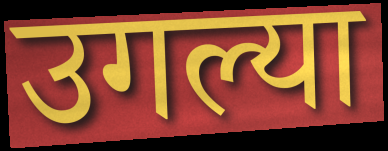
उगल्या